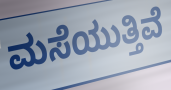
ಮಸೆಯುತ್ತಿವೆ